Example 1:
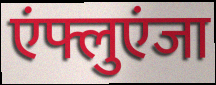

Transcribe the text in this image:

एंफ्लुएंजा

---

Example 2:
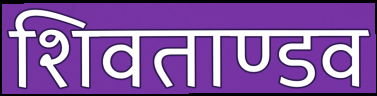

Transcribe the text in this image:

शिवताण्डव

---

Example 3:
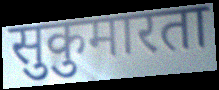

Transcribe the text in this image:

सुकुमारता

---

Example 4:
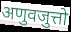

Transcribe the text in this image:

अणुवजुत्तो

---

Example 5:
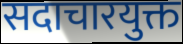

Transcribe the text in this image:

सदाचारयुक्त